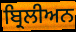
ਬ੍ਰਿਲੀਅਨ